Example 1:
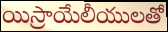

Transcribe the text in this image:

యిస్రాయేలీయులతో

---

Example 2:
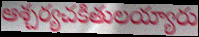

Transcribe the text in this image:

ఆశ్చర్యచకితులయ్యారు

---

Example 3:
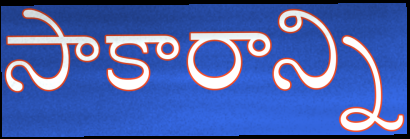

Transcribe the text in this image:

సాకారాన్ని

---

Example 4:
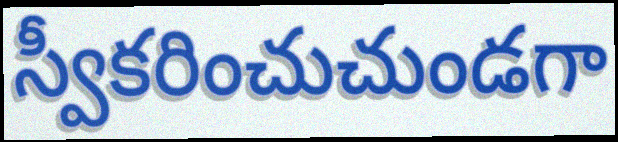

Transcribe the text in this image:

స్వీకరించుచుండగా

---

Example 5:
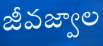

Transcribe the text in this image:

జీవజ్వాల